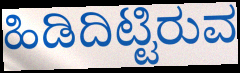
ಹಿಡಿದಿಟ್ಟಿರುವ